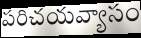
పరిచయవ్యాసం